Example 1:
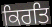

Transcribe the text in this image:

ਕਿਰਤਿ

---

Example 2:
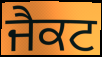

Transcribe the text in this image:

ਜੈਕਟ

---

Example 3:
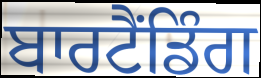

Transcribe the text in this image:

ਬਾਰਟੈਂਡਿੰਗ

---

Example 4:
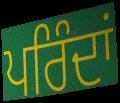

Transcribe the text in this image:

ਪਰਿੰਦਾਂ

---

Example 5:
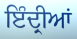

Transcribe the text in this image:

ਇੰਦ੍ਰੀਆਂ